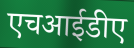
एचआईडीए